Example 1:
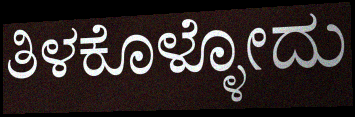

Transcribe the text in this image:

ತಿಳಕೊಳ್ಳೋದು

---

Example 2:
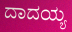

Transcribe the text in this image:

ದಾದಯ್ಯ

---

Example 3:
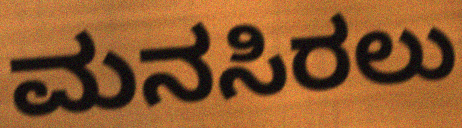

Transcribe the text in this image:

ಮನಸಿರಲು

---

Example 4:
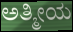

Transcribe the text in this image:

ಅತ್ಮೀಯ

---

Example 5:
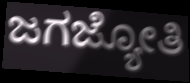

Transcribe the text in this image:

ಜಗಜ್ಯೋತಿ